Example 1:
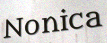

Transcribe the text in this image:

Nonica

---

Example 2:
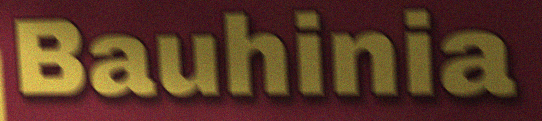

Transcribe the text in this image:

Bauhinia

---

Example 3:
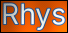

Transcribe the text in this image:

Rhys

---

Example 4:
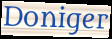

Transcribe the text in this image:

Doniger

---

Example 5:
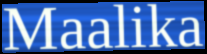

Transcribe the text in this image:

Maalika